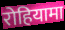
रोहियामा